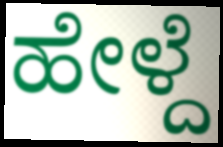
ಹೇಳ್ದೆ